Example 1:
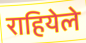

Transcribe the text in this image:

राहियेले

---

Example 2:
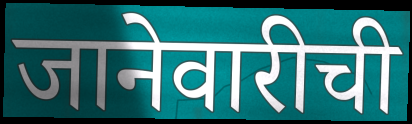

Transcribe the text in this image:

जानेवारीची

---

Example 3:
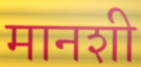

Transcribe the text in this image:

मानशी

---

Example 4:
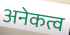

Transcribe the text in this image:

अनेकत्व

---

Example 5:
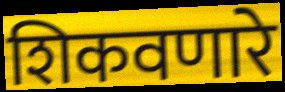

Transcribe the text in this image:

शिकवणारे